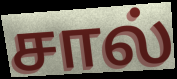
சால்